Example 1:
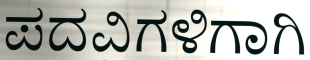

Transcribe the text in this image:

ಪದವಿಗಳಿಗಾಗಿ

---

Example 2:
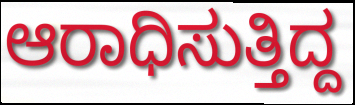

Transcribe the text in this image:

ಆರಾಧಿಸುತ್ತಿದ್ದ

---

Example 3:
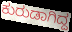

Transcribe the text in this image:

ಕುರುಡಾಗಿದ್ದ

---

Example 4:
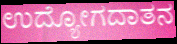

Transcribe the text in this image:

ಉದ್ಯೋಗದಾತನ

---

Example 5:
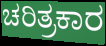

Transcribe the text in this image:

ಚರಿತ್ರಕಾರ